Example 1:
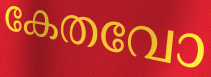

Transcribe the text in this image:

കേതവോ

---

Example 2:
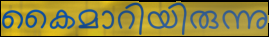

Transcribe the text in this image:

കൈമാറിയിരുന്നു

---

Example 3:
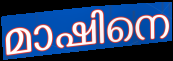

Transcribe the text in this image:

മാഷിനെ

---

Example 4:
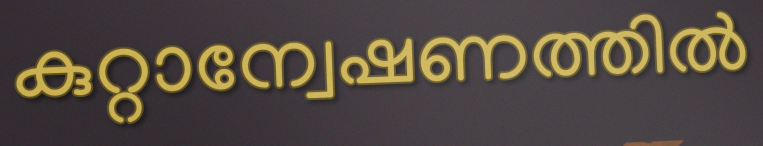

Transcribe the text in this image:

കുറ്റാന്വേഷണത്തിൽ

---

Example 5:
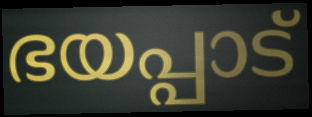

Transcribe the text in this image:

ഭയപ്പാട്